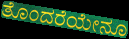
ತೊಂದರೆಯೇನೂ